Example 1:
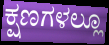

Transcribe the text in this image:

ಕ್ಷಣಗಳಲ್ಲೂ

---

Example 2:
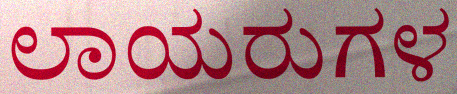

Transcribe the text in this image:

ಲಾಯರುಗಳ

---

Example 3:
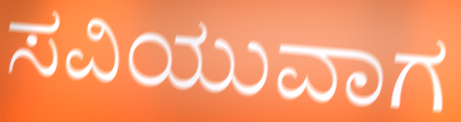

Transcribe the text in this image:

ಸವಿಯುವಾಗ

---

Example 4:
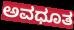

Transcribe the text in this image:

ಅವಧೂತ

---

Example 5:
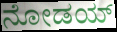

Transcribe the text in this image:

ನೋಡಯ್